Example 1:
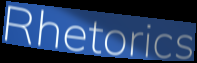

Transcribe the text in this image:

Rhetorics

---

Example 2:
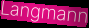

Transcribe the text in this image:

Langmann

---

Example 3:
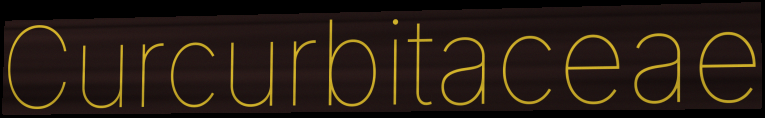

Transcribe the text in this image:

Curcurbitaceae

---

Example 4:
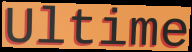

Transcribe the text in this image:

Ultime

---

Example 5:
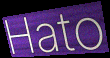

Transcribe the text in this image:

Hato